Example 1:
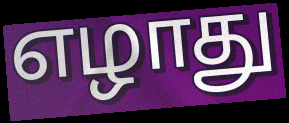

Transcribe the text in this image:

எழாது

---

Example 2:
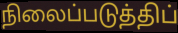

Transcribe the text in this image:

நிலைப்படுத்திப்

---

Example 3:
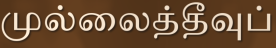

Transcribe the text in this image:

முல்லைத்தீவுப்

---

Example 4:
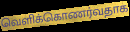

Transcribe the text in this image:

வெளிக்கொணர்வதாக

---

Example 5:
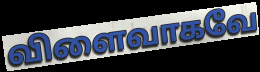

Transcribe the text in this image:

விளைவாகவே